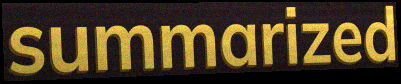
summarized